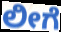
ಲೀಗೆ